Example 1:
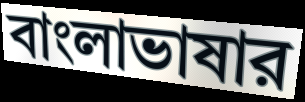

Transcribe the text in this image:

বাংলাভাষার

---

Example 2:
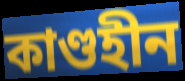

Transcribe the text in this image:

কাণ্ডহীন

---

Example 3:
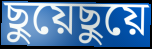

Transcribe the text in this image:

ছুয়েছুয়ে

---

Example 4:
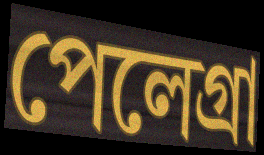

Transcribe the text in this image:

পেলেগ্রা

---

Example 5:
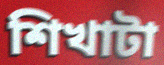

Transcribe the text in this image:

শিখাটা